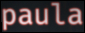
paula